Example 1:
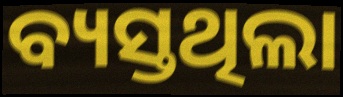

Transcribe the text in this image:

ବ୍ୟସ୍ତଥିଲା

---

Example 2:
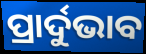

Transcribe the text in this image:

ପ୍ରାର୍ଦୁଭାବ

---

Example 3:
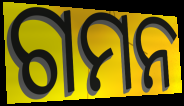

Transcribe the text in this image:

ଗମନ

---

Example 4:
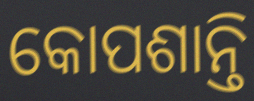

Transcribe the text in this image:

କୋପଶାନ୍ତି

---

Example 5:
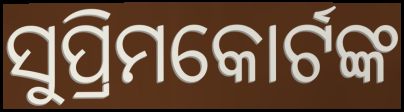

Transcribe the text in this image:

ସୁପ୍ରିମକୋର୍ଟଙ୍କ